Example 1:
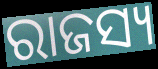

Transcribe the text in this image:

ରାଜସ୍ୟ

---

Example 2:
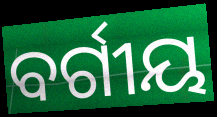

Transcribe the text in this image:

ବର୍ଗୀୟ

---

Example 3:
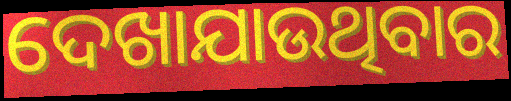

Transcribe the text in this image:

ଦେଖାଯାଉଥିବାର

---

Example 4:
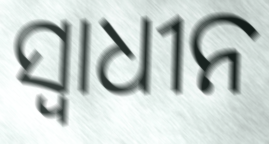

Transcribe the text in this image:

ସ୍ବାଧୀନ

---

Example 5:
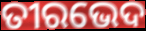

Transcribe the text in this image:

ତୀରଭେଦ